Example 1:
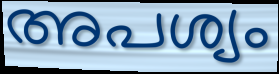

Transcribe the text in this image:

അപശ്യം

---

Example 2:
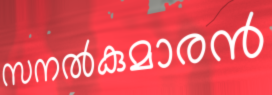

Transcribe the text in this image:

സനൽകുമാരൻ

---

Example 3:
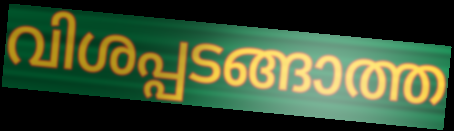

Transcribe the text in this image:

വിശപ്പടങ്ങാത്ത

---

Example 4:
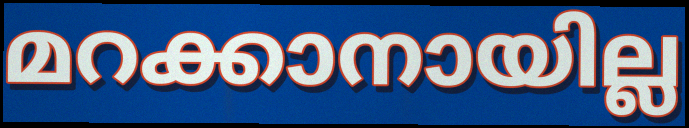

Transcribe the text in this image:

മറക്കാനായില്ല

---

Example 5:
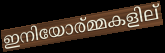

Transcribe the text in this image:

ഇനിയോര്മ്മകളില്